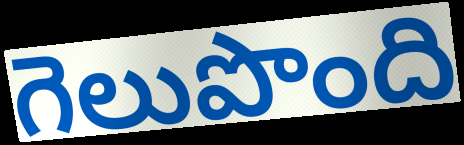
గెలుపొంది